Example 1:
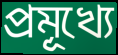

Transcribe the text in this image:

প্ৰমূখ্যে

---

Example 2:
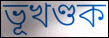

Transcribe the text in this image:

ভূখণ্ডক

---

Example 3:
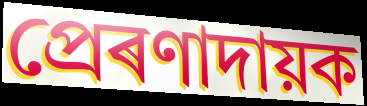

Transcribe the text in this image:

প্ৰেৰণাদায়ক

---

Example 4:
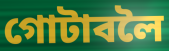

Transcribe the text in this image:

গোটাবলৈ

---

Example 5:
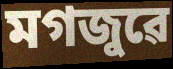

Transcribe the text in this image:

মগজুৱে